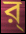
র্